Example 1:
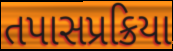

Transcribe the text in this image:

તપાસપ્રક્રિયા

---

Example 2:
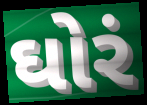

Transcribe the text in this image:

ઘોરં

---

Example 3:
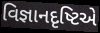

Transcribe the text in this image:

વિજ્ઞાનદૃષ્ટિએ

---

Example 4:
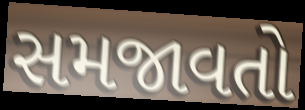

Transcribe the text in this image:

સમજાવતો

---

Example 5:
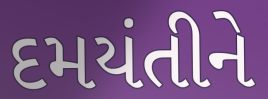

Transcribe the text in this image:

દમયંતીને